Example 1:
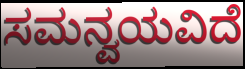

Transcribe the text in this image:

ಸಮನ್ವಯವಿದೆ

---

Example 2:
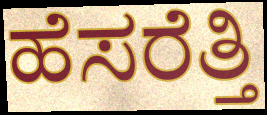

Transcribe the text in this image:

ಹೆಸರೆತ್ತಿ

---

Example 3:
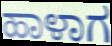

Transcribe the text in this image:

ಹಾಳಾಗ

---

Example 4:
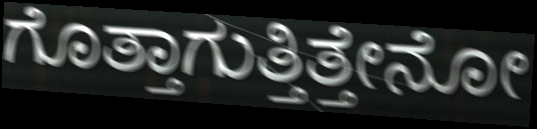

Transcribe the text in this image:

ಗೊತ್ತಾಗುತ್ತಿತ್ತೇನೋ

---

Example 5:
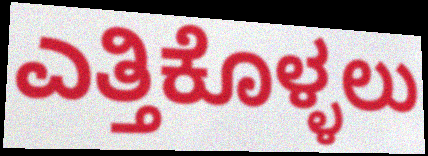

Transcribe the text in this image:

ಎತ್ತಿಕೊಳ್ಳಲು